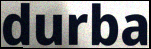
durba